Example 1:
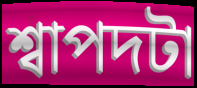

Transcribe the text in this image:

শ্বাপদটা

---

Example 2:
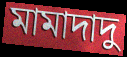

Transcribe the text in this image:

মামাদাদু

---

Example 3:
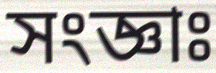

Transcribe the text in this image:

সংজ্ঞাঃ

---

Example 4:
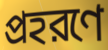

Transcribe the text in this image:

প্রহরণে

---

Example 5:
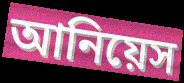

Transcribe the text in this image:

আনিয়েস